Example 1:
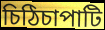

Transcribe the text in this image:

চিঠিচাপাটি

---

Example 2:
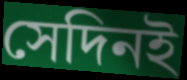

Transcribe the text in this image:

সেদিনই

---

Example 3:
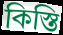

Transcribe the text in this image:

কিস্তি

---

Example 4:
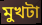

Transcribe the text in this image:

মুখটা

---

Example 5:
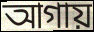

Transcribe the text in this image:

আগায়